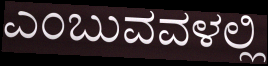
ಎಂಬುವವಳಲ್ಲಿ